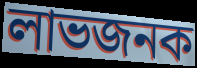
লাভজনক